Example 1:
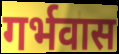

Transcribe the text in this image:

गर्भवास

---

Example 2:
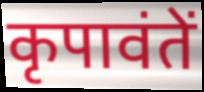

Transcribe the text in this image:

कृपावंतें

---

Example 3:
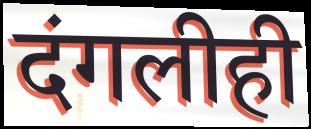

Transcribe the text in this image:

दंगलीही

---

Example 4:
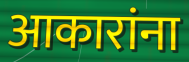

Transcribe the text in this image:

आकारांना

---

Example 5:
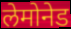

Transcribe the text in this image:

लेमोनेड